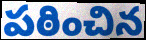
పఠించిన